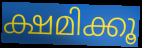
ക്ഷമിക്കൂ